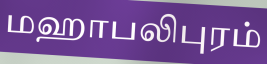
மஹாபலிபுரம்